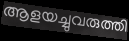
ആളയച്ചുവരുത്തി